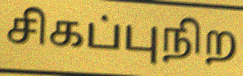
சிகப்புநிற